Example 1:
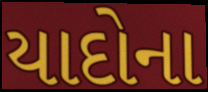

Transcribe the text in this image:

યાદોના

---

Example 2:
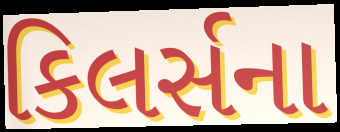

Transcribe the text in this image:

કિલર્સના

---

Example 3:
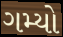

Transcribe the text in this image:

ગમ્યો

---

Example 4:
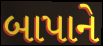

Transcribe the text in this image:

બાપાને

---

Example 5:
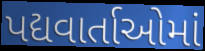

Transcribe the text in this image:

પદ્યવાર્તાઓમાં